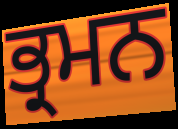
ਭ੍ਰਮਨ